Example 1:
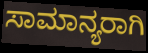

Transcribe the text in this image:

ಸಾಮಾನ್ಯರಾಗಿ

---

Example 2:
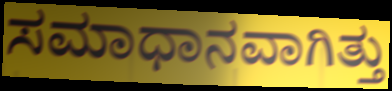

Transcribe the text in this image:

ಸಮಾಧಾನವಾಗಿತ್ತು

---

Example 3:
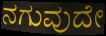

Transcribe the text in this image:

ನಗುವುದೇ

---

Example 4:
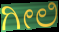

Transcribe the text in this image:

ಗೀಲಿ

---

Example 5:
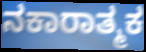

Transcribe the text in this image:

ನಕಾರಾತ್ಮಕ